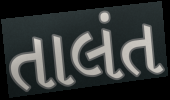
તાલંત